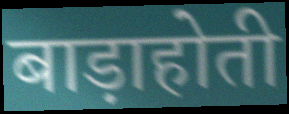
बाड़ाहोती